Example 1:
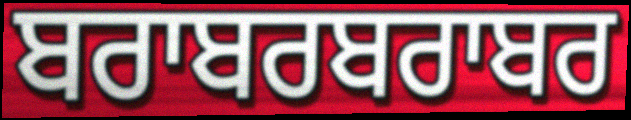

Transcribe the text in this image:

ਬਰਾਬਰਬਰਾਬਰ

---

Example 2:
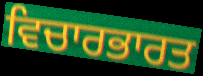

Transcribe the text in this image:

ਵਿਚਾਰਭਾਰਤ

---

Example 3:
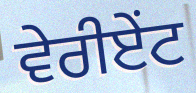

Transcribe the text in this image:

ਵੇਰੀਏਂਟ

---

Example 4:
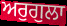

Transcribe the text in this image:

ਅਰੁਗੁਲਾ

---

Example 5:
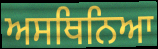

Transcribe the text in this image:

ਅਸਥਿਨਿਆ